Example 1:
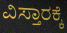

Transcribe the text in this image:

ವಿಸ್ತಾರಕ್ಕೆ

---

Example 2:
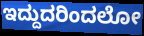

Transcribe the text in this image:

ಇದ್ದುದರಿಂದಲೋ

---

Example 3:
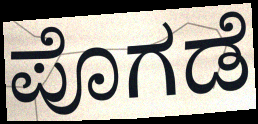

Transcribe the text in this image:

ಪೊಗಡೆ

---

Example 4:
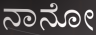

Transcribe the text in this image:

ನಾನೋ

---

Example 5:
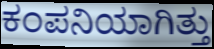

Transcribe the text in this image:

ಕಂಪನಿಯಾಗಿತ್ತು